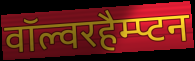
वॉल्वरहैम्प्टन